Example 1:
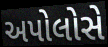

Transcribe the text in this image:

અપોલોસે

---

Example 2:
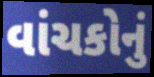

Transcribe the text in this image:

વાંચકોનું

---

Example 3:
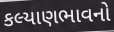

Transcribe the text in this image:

કલ્યાણભાવનો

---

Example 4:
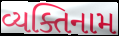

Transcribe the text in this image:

વ્યક્તિનામ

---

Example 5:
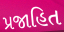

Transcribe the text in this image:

પ્રજાહિત